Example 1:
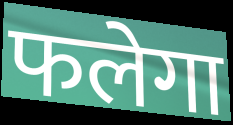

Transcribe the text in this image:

फलेगा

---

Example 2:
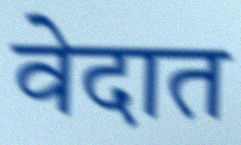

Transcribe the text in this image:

वेदात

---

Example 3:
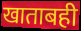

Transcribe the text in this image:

खाताबही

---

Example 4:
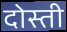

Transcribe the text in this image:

दोस्ती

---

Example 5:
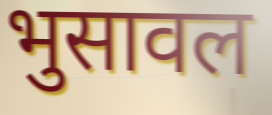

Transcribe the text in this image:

भुसावल